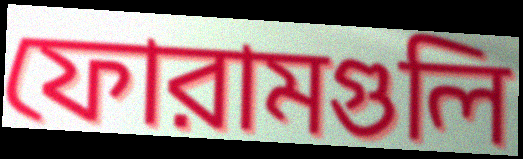
ফোরামগুলি